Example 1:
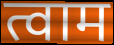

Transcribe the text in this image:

त्वाम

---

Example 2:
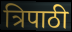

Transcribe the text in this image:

त्रिपाठी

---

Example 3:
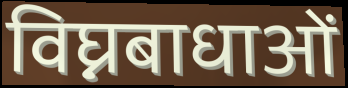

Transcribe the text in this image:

विघ्नबाधाओं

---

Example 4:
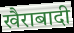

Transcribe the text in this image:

खैराबादी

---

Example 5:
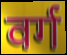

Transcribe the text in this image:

वर्ग